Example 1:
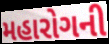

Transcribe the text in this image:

મહારોગની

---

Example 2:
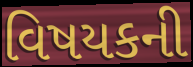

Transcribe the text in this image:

વિષયકની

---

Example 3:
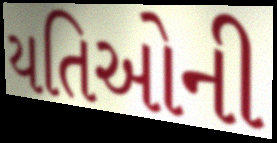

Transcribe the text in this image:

યતિઓની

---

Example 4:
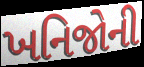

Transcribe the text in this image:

ખનિજોની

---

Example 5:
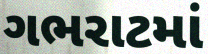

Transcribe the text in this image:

ગભરાટમાં